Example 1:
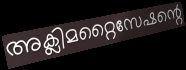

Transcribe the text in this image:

അക്ലിമറ്റൈസേഷന്റെ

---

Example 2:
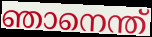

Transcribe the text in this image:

ഞാനെന്ത്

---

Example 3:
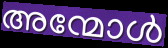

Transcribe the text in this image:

അന്മോൾ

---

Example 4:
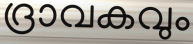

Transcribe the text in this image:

ദ്രാവകവും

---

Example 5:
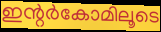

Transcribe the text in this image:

ഇന്റർകോമിലൂടെ